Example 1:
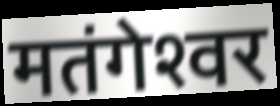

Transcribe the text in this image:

मतंगेश्वर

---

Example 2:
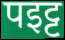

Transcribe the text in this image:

पइट्ट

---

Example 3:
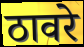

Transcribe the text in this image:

ठावरे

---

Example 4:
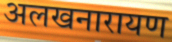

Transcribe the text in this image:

अलखनारायण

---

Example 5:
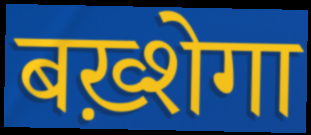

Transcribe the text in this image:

बख़्शेगा